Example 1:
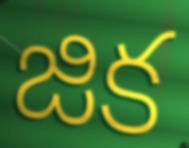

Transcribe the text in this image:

జిక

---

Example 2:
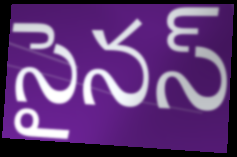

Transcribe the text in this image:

సైనస్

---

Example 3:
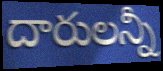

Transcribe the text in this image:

దారులన్నీ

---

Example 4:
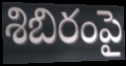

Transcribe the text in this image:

శిబిరంపై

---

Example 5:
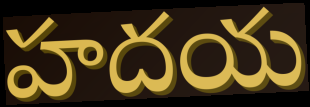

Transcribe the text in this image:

హదయ